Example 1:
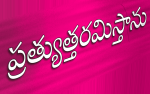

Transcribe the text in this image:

ప్రత్యుత్తరమిస్తాను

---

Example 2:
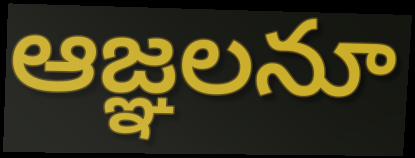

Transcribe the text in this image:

ఆజ్ఞలనూ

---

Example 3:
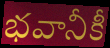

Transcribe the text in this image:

భవానీకీ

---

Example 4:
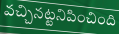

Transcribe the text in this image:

వచ్చినట్టనిపించింది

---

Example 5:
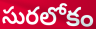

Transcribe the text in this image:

సురలోకం